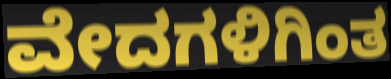
ವೇದಗಳಿಗಿಂತ